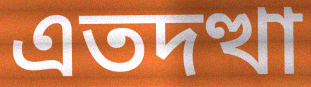
এতদত্থা